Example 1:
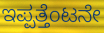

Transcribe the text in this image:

ಇಪ್ಪತ್ತೆಂಟನೇ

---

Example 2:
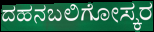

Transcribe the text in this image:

ದಹನಬಲಿಗೋಸ್ಕರ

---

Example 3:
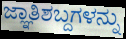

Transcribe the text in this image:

ಜ್ಞಾತಿಶಬ್ದಗಳನ್ನು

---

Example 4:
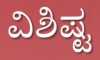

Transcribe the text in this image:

ವಿಶಿಷ್ಟ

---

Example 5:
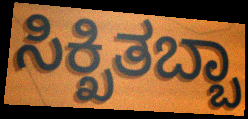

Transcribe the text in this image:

ಸಿಕ್ಖಿತಬ್ಬಾ